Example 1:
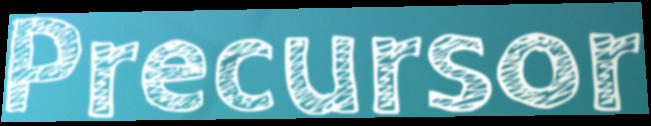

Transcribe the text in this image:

Precursor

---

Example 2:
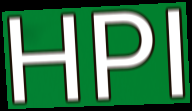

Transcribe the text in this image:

HPI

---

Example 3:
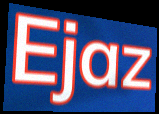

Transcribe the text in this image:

Ejaz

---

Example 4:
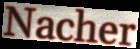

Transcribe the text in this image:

Nacher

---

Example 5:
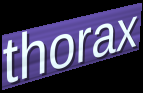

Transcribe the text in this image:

thorax